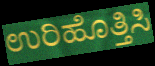
ಉರಿಹೊತ್ತಿಸಿ